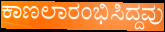
ಕಾಣಲಾರಂಭಿಸಿದ್ದವು